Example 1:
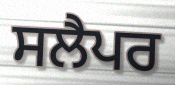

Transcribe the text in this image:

ਸਲੈਪਰ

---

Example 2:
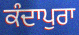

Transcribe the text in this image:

ਕੰਦਾਪੁਰਾ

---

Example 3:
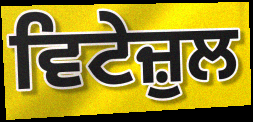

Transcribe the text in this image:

ਵਿਟੇਜ਼ੁਲ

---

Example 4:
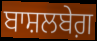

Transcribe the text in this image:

ਬਾਸ਼ਲਬੇਗ਼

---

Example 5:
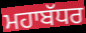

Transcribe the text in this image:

ਮਹਾਬੱਧਰ